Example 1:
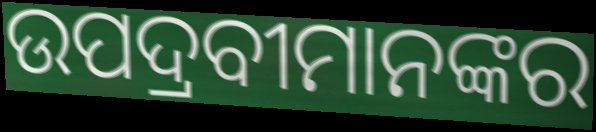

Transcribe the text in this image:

ଉପଦ୍ରବୀମାନଙ୍କର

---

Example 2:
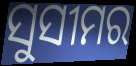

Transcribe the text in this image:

ସୁସୀମର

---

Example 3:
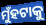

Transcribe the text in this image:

ମୁଁହଟାକୁ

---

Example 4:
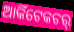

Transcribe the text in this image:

ଆର୍କିଟେକଚର୍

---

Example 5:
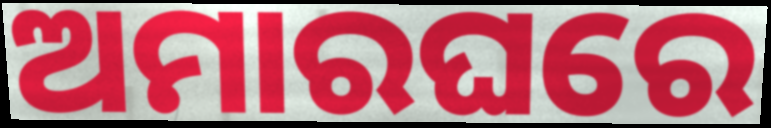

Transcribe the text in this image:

ଅମାରଘରେ